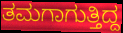
ತಮಗಾಗುತ್ತಿದ್ದ